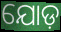
ଯୋଡ଼